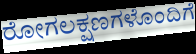
ರೋಗಲಕ್ಷಣಗಳೊಂದಿಗೆ